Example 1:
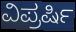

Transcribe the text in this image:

ವಿಪ್ರರ್ಷಿ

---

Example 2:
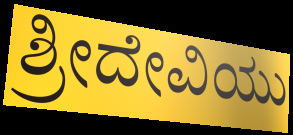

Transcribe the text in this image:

ಶ್ರೀದೇವಿಯು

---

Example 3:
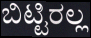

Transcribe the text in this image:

ಬಿಟ್ಟಿರಲ್ಲ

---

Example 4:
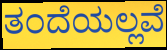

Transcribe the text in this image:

ತಂದೆಯಲ್ಲವೆ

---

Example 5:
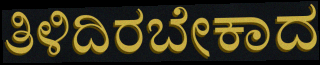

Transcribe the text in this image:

ತಿಳಿದಿರಬೇಕಾದ